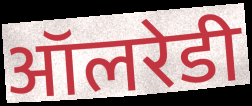
ऑलरेडी